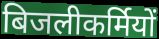
बिजलीकर्मियों